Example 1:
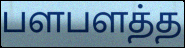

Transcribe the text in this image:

பளபளத்த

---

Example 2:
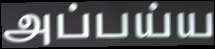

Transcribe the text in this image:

அப்பய்ய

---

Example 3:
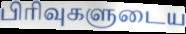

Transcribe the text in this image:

பிரிவுகளுடைய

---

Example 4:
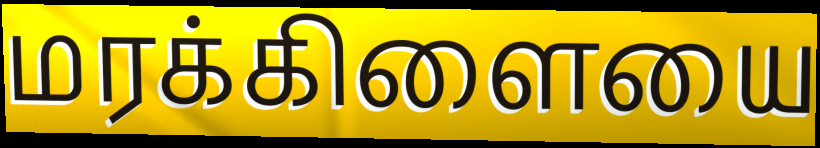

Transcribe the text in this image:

மரக்கிளையை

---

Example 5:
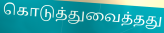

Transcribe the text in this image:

கொடுத்துவைத்தது